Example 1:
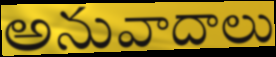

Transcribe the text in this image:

అనువాదాలు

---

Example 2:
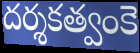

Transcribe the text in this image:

దర్శకత్వంకె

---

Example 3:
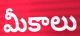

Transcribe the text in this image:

మీకాలు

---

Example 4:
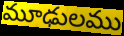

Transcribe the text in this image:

మూఢులము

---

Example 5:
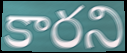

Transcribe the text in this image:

కారని